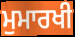
ਮੁਮਾਰਖੀ